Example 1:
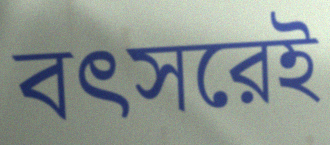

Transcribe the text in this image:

বৎসরেই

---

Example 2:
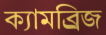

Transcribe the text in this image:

ক্যামব্র্রিজ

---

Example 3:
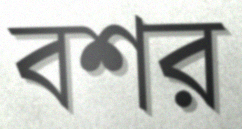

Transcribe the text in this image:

বশর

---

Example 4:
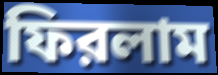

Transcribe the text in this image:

ফিরলাম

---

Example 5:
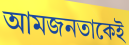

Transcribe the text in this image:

আমজনতাকেই